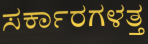
ಸರ್ಕಾರಗಳತ್ತ